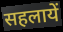
सहलायें